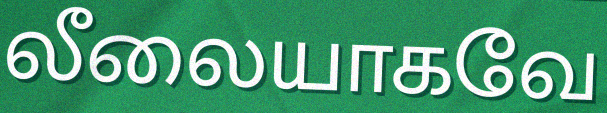
லீலையாகவே